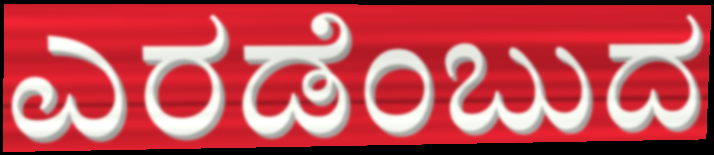
ಎರಡೆಂಬುದ